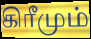
கிரீமும்